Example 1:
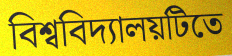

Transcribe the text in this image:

বিশ্ববিদ্যালয়টিতে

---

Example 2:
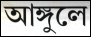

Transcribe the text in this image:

আঙ্গুলে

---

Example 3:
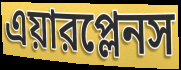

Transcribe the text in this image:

এয়ারপ্লেনস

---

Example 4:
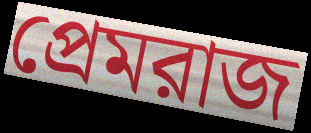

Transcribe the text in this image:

প্রেমরাজ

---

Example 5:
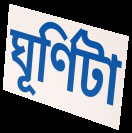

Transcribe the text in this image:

ঘূর্ণিটা